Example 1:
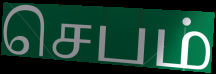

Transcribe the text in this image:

செபம்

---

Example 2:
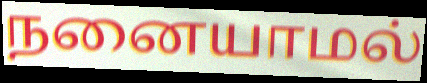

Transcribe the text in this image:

நனையாமல்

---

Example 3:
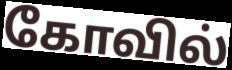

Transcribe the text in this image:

கோவில்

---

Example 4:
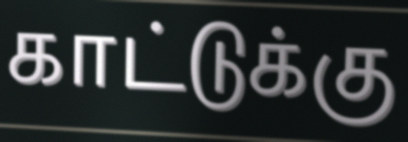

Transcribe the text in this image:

காட்டுக்கு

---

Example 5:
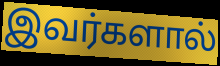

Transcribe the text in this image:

இவர்களால்